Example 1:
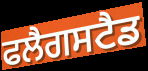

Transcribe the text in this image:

ਫਲੈਗਸਟੈਡ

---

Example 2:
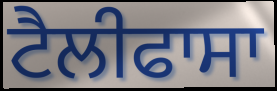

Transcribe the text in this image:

ਟੈਲੀਫਾਸਾ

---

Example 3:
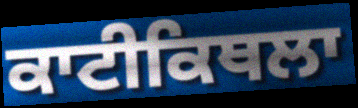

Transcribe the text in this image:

ਕਾਟੀਕਿਥਲਾ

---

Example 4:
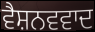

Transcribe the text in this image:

ਵੈਸ਼ਨਵਵਾਦ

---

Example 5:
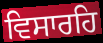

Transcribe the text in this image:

ਵਿਸਾਰਹਿ